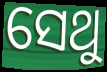
ସେଥୁ